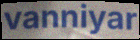
vanniyar